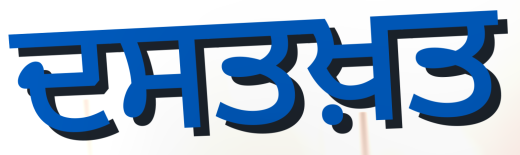
ਦਸਤਖ਼ਤ